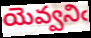
యెవ్వనిఁ